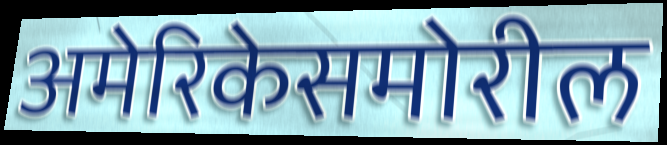
अमेरिकेसमोरील